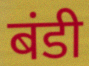
बंडी